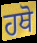
ਹਥੋ